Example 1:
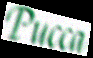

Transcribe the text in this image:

Pucca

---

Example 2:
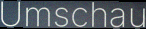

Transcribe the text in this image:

Umschau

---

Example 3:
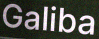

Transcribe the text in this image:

Galiba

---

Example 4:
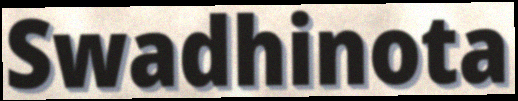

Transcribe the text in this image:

Swadhinota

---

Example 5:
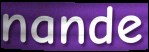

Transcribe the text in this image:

nande